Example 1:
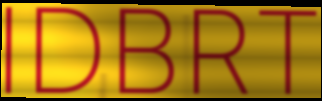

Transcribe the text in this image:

IDBRT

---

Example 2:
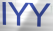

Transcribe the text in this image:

IYY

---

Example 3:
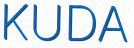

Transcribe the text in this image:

KUDA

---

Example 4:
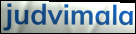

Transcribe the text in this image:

judvimala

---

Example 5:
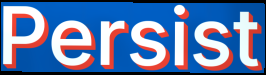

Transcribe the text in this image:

Persist